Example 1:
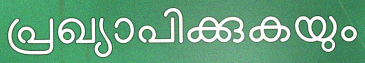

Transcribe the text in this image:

പ്രഖ്യാപിക്കുകയും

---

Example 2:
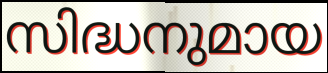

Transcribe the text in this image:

സിദ്ധനുമായ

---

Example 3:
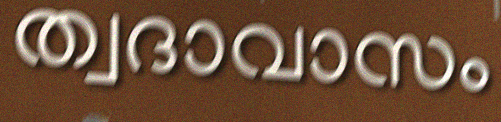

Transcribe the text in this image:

ത്വദാവാസം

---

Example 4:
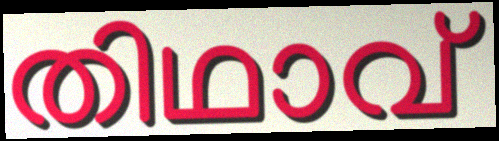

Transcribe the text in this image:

തിഥാവ്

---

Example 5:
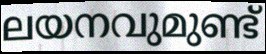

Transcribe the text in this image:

ലയനവുമുണ്ട്